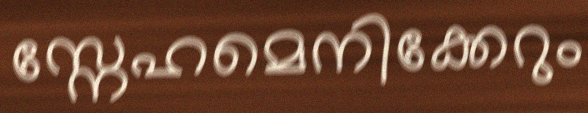
സ്നേഹമെനിക്കേറും